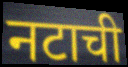
नटाची